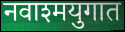
नवाश्मयुगात